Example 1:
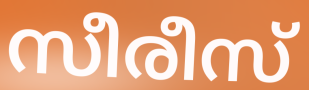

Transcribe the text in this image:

സീരീസ്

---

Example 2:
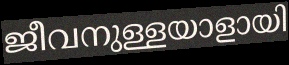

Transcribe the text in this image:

ജീവനുള്ളയാളായി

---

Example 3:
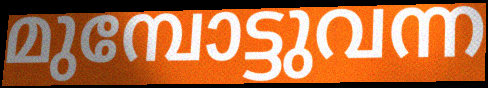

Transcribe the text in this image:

മുമ്പോട്ടുവന്ന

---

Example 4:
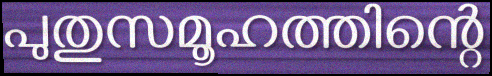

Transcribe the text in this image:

പുതുസമൂഹത്തിന്റെ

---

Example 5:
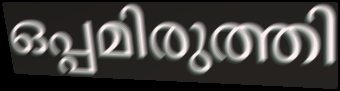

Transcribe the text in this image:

ഒപ്പമിരുത്തി